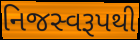
નિજસ્વરૂપથી